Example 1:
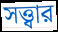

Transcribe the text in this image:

সত্ত্বার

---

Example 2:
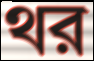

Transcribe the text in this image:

থর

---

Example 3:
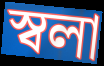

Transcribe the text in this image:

স্বলা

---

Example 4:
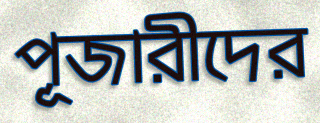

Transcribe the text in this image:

পূজারীদের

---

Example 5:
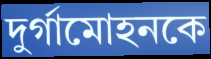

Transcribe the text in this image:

দুর্গামোহনকে